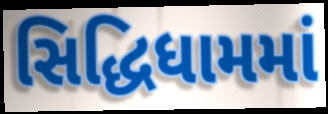
સિદ્ધિધામમાં